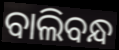
ବାଲିବନ୍ଧ